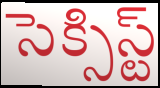
సెక్సిస్ట్